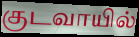
குடவாயில்